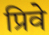
प्रिवे